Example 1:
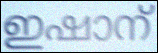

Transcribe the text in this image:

ഇഷാന്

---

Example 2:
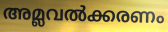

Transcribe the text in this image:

അമ്ലവൽക്കരണം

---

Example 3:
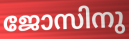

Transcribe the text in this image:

ജോസിനു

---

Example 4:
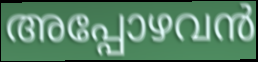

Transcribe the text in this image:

അപ്പോഴവൻ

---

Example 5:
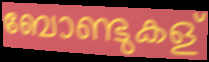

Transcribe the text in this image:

ബോണ്ടുകള്